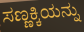
ಸಣ್ಣಕ್ಕಿಯನ್ನು